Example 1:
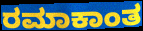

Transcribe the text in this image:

ರಮಾಕಾಂತ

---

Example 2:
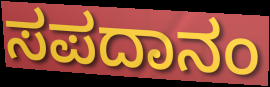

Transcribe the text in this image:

ಸಪದಾನಂ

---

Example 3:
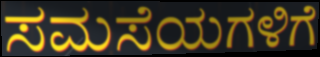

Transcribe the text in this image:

ಸಮಸೆಯಗಳಿಗೆ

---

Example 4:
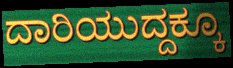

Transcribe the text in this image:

ದಾರಿಯುದ್ದಕ್ಕೂ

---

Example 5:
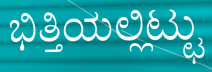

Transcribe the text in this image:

ಭಿತ್ತಿಯಲ್ಲಿಟ್ಟು